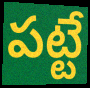
పట్టే